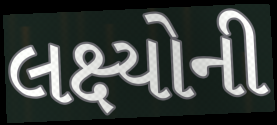
લક્ષ્યોની